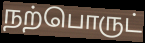
நற்பொருட்